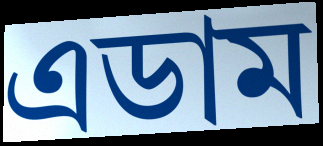
এডাম